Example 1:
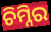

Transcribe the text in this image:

ଚିମ୍ନିର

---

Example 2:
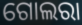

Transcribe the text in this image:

ଗୋଲରା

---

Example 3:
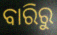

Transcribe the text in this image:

ବାରିରୁ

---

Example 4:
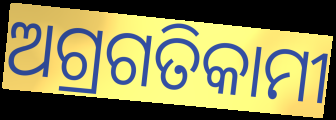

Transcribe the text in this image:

ଅଗ୍ରଗତିକାମୀ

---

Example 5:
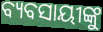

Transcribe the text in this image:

ବ୍ୟବସାୟୀଙ୍କୁ